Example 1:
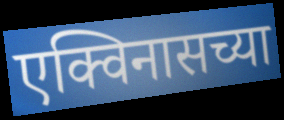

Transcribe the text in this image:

एक्विनासच्या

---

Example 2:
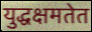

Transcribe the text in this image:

युद्धक्षमतेत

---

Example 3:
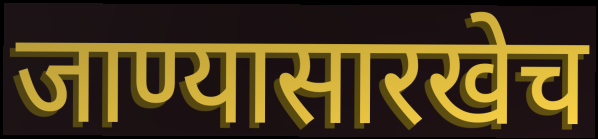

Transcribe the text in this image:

जाण्यासारखेच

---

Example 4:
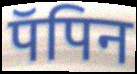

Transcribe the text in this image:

पॅपिन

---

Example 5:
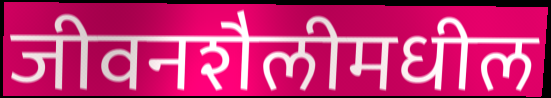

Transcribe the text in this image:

जीवनशैलीमधील